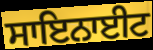
ਸਾਇਨਾਈਟ